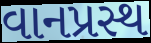
વાનપ્રસ્થ